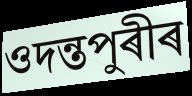
ওদন্তপুৰীৰ